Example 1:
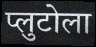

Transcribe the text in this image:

प्लुटोला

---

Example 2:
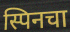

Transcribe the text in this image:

स्पिनचा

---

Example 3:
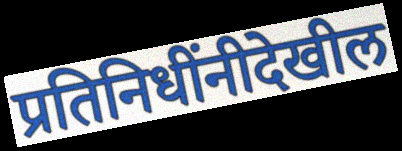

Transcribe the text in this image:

प्रतिनिधींनीदेखील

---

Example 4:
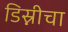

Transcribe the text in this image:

डिस्नीचा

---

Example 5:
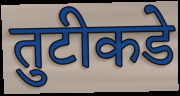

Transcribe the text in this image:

तुटीकडे